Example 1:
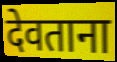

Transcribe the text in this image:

देवताना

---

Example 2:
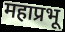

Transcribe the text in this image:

महाप्रभू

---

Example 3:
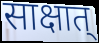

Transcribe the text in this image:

साक्षात्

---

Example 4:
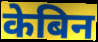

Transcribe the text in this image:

केबिन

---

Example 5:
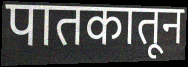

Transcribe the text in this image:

पातकातून